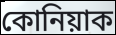
কোনিয়াক